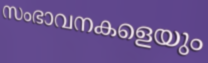
സംഭാവനകളെയും